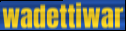
wadettiwar